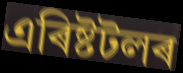
এৰিষ্টটলৰ